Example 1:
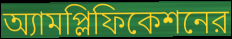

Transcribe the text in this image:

অ্যামপ্লিফিকেশনের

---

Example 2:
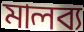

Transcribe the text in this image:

মালব্য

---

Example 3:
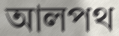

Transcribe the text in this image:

আলপথ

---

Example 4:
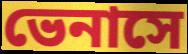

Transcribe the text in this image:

ভেনাসে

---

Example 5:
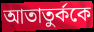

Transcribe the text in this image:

আতাতুর্ককে